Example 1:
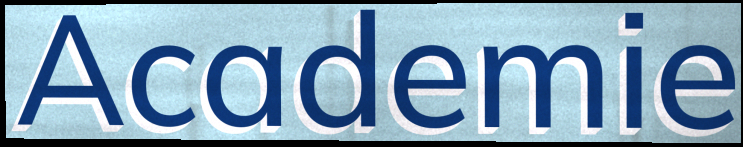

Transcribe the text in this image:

Academie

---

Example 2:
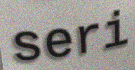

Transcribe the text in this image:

seri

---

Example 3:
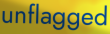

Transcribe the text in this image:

unflagged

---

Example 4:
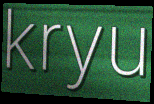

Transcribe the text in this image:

kryu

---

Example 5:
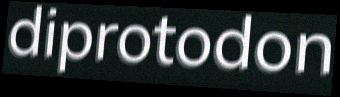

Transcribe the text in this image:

diprotodon